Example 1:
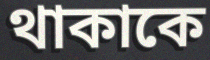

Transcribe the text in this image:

থাকাকে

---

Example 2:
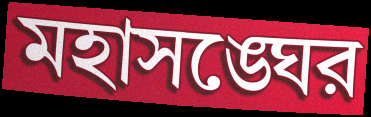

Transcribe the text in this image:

মহাসঙ্ঘের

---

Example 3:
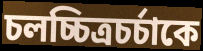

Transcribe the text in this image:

চলচ্চিত্রচর্চাকে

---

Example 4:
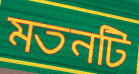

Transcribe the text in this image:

মতনটি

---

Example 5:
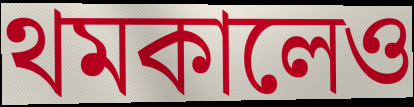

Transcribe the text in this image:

থমকালেও